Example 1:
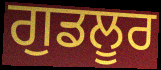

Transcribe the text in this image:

ਗੁਡਲੂਰ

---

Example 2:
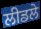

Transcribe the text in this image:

ਲੀਡਲੇ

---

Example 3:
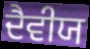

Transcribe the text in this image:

ਦੈਵੀਯ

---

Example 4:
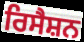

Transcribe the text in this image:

ਰਿਸੈਸ਼ਨ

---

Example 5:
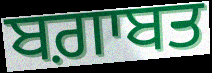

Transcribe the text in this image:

ਬਗ਼ਾਬਤ